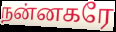
நன்னகரே